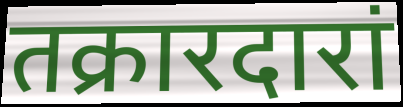
तक्रारदारां